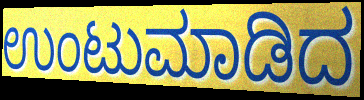
ಉಂಟುಮಾಡಿದ